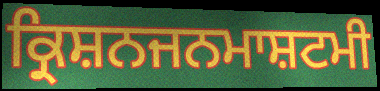
ਕ੍ਰਿਸ਼ਨਜਨਮਾਸ਼ਟਮੀ